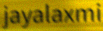
jayalaxmi